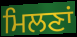
ਮਿਲਣਾਂ